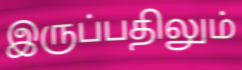
இருப்பதிலும்